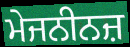
ਮੇਜਨੀਨਜ਼